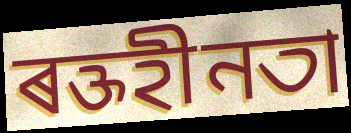
ৰক্তহীনতা